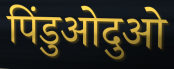
पिंडुओदुओ